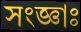
সংজ্ঞাঃ